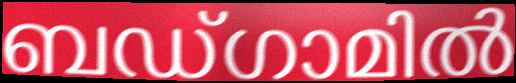
ബഡ്ഗാമിൽ